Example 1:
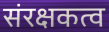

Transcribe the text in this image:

संरक्षकत्व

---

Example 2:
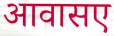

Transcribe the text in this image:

आवासए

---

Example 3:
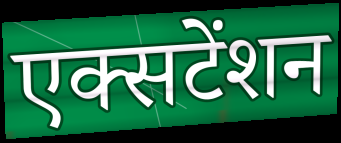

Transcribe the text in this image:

एक्सटेंशन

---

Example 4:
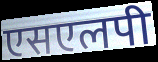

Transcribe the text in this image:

एसएलपी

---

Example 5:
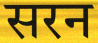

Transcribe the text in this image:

सरन